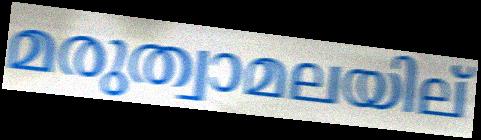
മരുത്വാമലയില്